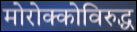
मोरोक्कोविरुद्ध